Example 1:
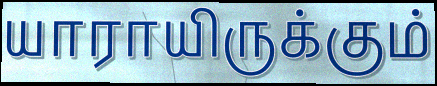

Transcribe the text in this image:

யாராயிருக்கும்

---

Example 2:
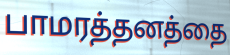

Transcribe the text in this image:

பாமரத்தனத்தை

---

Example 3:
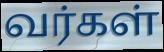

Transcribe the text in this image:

வர்கள்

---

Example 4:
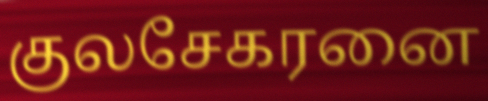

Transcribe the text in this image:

குலசேகரனை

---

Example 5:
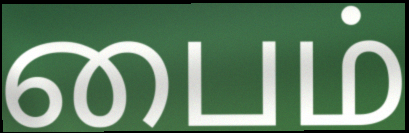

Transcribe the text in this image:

பைம்